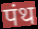
पंथ